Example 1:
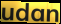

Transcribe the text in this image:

udan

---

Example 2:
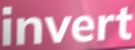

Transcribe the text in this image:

invert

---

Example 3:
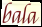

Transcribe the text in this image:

bala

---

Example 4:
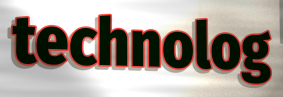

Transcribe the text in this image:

technolog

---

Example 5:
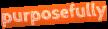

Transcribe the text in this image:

purposefully